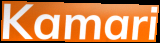
Kamari